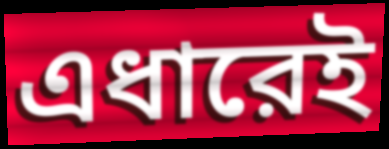
এধারেই